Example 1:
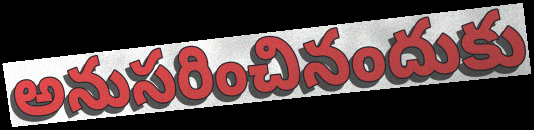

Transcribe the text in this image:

అనుసరించినందుకు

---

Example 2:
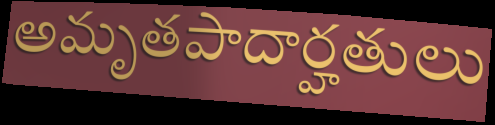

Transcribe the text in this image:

అమృతపాదార్హతులు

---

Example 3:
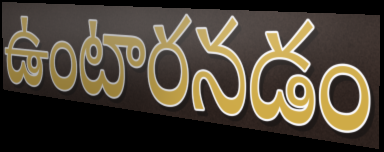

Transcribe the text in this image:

ఉంటారనడం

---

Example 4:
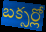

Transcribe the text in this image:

బక్సర్లో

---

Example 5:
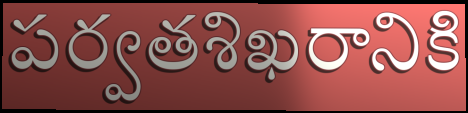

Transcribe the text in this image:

పర్వతశిఖరానికి